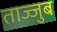
ताज्जुब